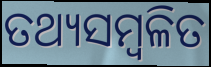
ତଥ୍ୟସମ୍ବଳିତ